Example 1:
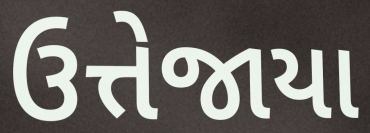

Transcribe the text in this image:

ઉત્તેજાયા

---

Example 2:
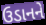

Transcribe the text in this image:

ઉડાનને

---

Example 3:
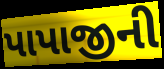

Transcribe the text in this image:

પાપાજીની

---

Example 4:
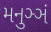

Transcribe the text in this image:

મનુઞ્ઞં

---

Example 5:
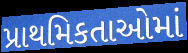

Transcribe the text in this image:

પ્રાથમિકતાઓમાં